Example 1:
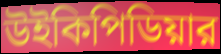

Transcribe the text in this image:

উইকিপিডিয়ার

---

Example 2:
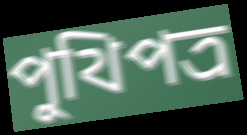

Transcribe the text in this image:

পুথিপত্র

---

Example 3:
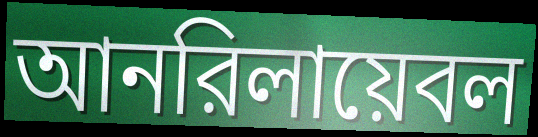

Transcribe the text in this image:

আনরিলায়েবল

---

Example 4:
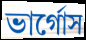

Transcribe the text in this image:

ভার্গোস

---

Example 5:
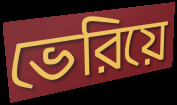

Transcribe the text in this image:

ভেরিয়ে